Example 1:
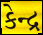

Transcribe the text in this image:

કેન્દ્ર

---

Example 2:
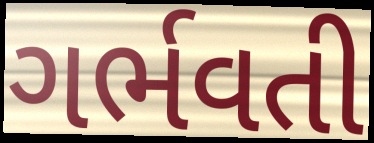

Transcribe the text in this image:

ગર્ભવતી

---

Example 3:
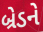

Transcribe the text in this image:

બ્રેડને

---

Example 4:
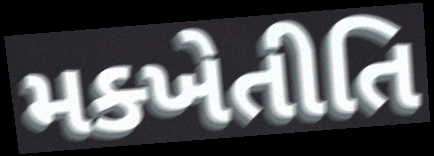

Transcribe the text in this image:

મક્ખેતીતિ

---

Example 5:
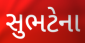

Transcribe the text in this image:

સુભટેના